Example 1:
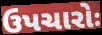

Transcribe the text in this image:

ઉપચારોઃ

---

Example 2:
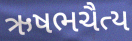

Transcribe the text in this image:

ઋષભચૈત્ય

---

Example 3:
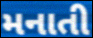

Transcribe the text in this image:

મનાતી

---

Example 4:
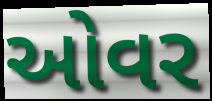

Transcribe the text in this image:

ઓવર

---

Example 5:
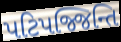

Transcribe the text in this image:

પટિપજ્જિન્તિ